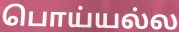
பொய்யல்ல